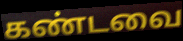
கண்டவை